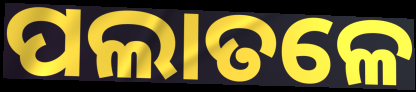
ପଲାତଳେ